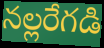
నల్లరేగడి